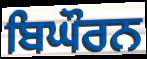
ਬਿਘੌਰਨ